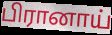
பிரானாய்